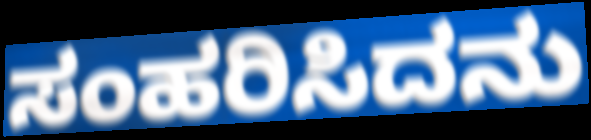
ಸಂಹರಿಸಿದನು